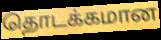
தொடக்கமான